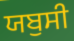
ਯਬੁਸੀ